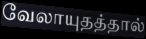
வேலாயுதத்தால்